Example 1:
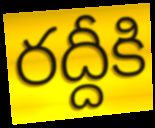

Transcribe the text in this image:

రద్దీకి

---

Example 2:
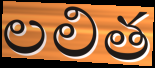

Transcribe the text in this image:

లలిత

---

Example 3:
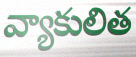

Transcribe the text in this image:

వ్యాకులిత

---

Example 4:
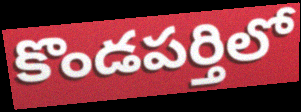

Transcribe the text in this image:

కొండపర్తిలో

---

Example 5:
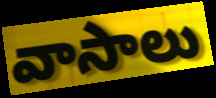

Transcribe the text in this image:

వాసాలు